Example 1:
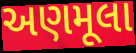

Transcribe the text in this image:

અણમૂલા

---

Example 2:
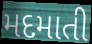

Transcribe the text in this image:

મદમાતી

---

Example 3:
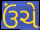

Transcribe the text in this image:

ઉંચે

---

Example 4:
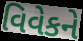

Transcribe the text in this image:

વિવેકને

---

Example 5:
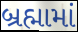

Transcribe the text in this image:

બ્રહ્મામાં